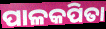
ପାଳକପିତା